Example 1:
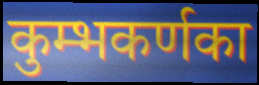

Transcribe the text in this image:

कुम्भकर्णका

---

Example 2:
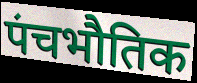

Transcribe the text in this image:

पंचभौतिक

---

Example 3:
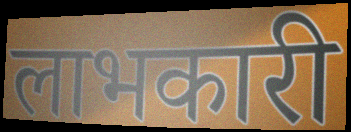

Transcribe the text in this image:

लाभकारी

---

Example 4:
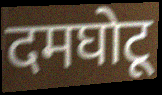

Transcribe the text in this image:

दमघोटू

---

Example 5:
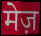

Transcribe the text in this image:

मेज़